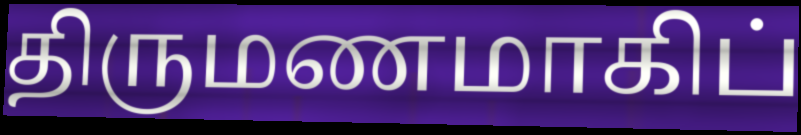
திருமணமாகிப்